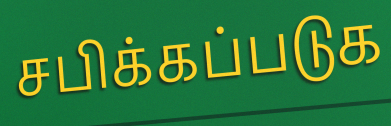
சபிக்கப்படுக